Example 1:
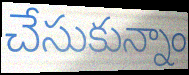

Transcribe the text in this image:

చేసుకున్నాం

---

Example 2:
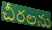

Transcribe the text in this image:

చీరలను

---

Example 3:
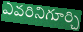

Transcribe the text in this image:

ఎవరినిగూర్చి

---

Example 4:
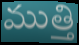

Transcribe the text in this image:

ముత్తి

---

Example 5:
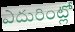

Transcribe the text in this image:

ఎదురింట్లో